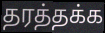
தரத்தக்க